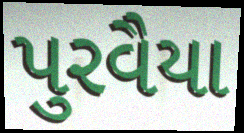
પુરવૈયા